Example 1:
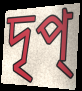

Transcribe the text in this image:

দৃপ্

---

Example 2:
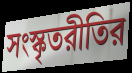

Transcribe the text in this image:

সংস্কৃতরীতির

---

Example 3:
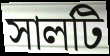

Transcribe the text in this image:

সালটি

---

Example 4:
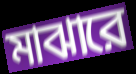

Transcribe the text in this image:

মাঝারে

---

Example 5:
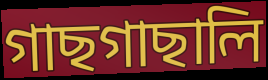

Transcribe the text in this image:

গাছগাছালি